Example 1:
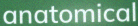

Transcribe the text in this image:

anatomical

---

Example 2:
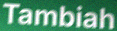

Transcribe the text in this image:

Tambiah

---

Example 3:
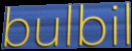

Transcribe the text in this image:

bulbil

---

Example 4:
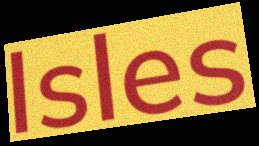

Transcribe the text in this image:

Isles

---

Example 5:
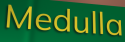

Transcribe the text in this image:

Medulla